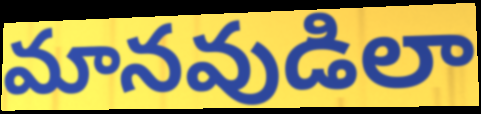
మానవుడిలా